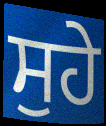
ਸੁਹੇ